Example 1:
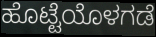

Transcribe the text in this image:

ಹೊಟ್ಟೆಯೊಳಗಡೆ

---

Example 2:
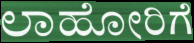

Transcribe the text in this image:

ಲಾಹೋರಿಗೆ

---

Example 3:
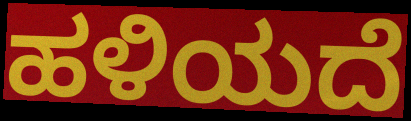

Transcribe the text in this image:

ಹಳಿಯದೆ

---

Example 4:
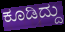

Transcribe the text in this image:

ಕೂಡಿದ್ದು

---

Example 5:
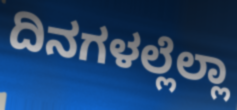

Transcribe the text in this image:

ದಿನಗಳಲ್ಲೆಲ್ಲಾ